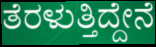
ತೆರಳುತ್ತಿದ್ದೇನೆ